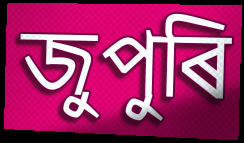
জুপুৰি